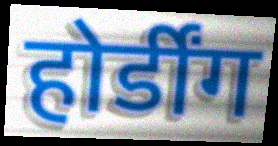
होर्डींग